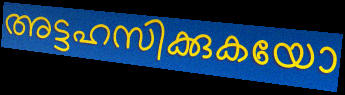
അട്ടഹസിക്കുകയോ